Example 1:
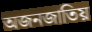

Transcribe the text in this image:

অজনজাতিয়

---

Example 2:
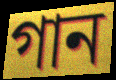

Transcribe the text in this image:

গান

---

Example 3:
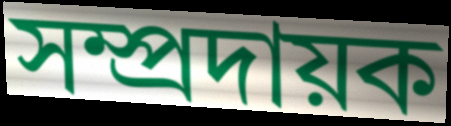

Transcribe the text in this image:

সম্প্ৰদায়ক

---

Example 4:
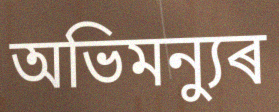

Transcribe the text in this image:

অভিমন্যুৰ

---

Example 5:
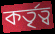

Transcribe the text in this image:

কৰ্তৃত্ব